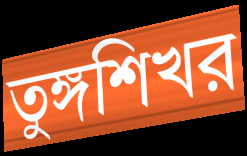
তুঙ্গশিখর